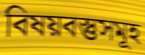
বিষয়বস্তুসমূহ